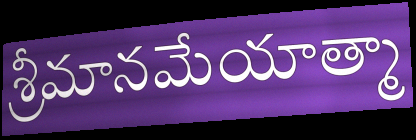
శ్రీమానమేయాత్మా